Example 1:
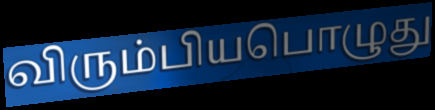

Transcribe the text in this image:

விரும்பியபொழுது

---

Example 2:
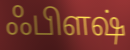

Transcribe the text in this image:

ஃபிளஷ்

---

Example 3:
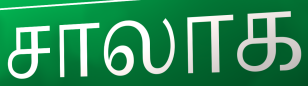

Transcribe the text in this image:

சாலாக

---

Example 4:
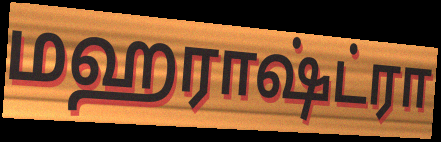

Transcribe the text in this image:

மஹராஷ்ட்ரா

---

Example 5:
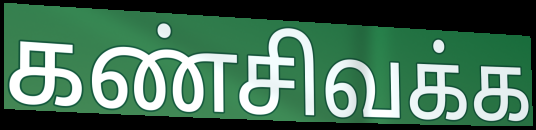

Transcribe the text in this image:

கண்சிவக்க